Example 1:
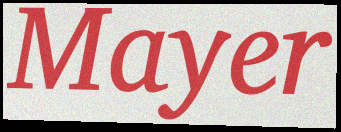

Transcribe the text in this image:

Mayer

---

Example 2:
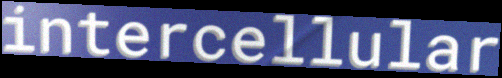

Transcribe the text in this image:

intercellular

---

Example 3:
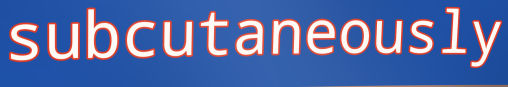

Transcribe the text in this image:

subcutaneously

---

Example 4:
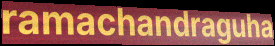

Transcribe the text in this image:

ramachandraguha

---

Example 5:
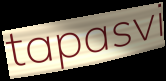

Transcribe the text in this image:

tapasvi